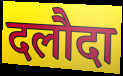
दलौदा